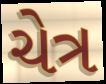
ચેત્ર